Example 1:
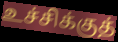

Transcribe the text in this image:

உச்சிக்குத்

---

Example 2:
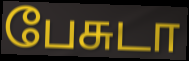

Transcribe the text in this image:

பேசுடா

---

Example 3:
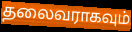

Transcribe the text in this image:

தலைவராகவும்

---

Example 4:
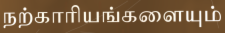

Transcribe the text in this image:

நற்காரியங்களையும்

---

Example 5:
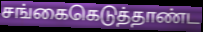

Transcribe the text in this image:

சங்கைகெடுத்தாண்ட